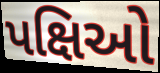
પક્ષિઓ